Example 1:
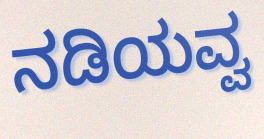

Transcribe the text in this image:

ನಡಿಯವ್ವ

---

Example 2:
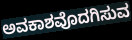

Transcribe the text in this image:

ಅವಕಾಶವೊದಗಿಸುವ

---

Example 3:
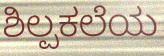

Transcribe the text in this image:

ಶಿಲ್ಪಕಲೆಯ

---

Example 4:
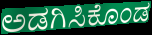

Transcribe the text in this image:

ಅಡಗಿಸಿಕೊಂಡ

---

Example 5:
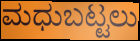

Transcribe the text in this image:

ಮಧುಬಟ್ಟಲು